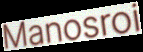
Manosroi